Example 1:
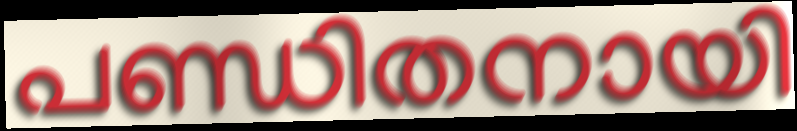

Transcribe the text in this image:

പണ്ഡിതനായി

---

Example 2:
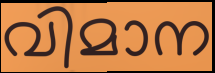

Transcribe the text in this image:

വിമാന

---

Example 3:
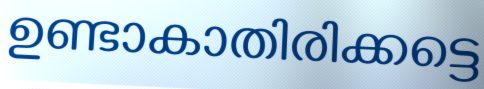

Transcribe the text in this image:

ഉണ്ടാകാതിരിക്കട്ടെ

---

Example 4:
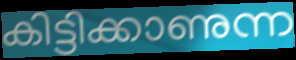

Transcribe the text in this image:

കിട്ടിക്കാണുന്ന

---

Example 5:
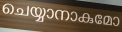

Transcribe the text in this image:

ചെയ്യാനാകുമോ